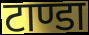
टाण्डा